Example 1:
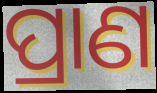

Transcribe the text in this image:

ପ୍ରାଣ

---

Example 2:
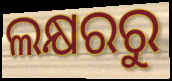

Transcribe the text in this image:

ଲକ୍ଷରରୁ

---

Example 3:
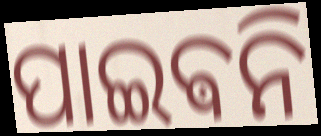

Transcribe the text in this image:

ପାଇଵନି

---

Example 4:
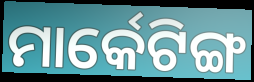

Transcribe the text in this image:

ମାର୍କେଟିଙ୍ଗ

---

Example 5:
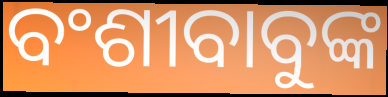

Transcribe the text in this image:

ବଂଶୀବାବୁଙ୍କ